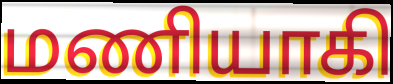
மணியாகி